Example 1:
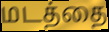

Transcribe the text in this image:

மடத்தை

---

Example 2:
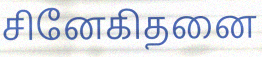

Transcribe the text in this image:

சினேகிதனை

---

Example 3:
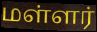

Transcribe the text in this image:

மள்ளர்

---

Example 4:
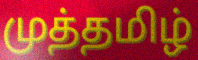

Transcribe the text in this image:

முத்தமிழ்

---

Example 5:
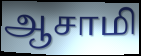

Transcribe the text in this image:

ஆசாமி